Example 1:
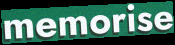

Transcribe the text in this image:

memorise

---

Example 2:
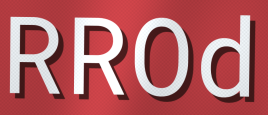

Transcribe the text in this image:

RROd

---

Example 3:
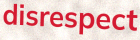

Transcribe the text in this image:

disrespect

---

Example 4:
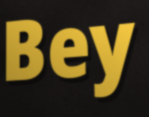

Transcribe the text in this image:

Bey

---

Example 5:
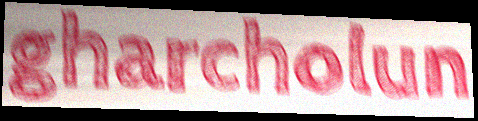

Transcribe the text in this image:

gharcholun